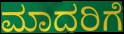
ಮಾದರಿಗೆ